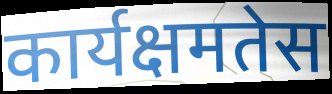
कार्यक्षमतेस